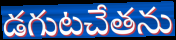
డగుటచేతను